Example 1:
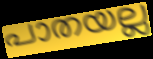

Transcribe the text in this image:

പാതയല്ല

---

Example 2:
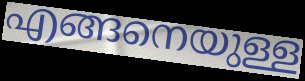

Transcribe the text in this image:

എങ്ങനെയുള്ള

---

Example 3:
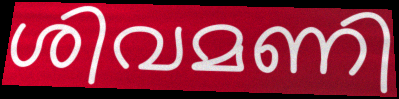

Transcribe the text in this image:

ശിവമണി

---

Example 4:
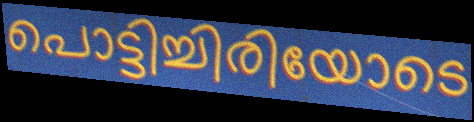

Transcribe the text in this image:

പൊട്ടിച്ചിരിയോടെ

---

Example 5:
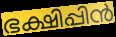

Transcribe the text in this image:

ഭക്ഷിപ്പിൻ